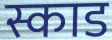
स्काड